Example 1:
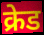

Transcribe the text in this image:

क्रेड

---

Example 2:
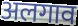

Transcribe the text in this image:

अलगाव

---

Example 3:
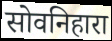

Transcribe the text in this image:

सोवनिहारा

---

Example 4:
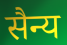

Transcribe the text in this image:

सैन्य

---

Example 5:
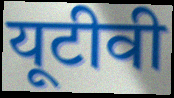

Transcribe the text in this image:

यूटीवी